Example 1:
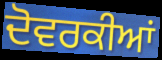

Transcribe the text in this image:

ਦੋਵਰਕੀਆਂ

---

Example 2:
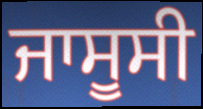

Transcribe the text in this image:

ਜਾਸੂਸੀ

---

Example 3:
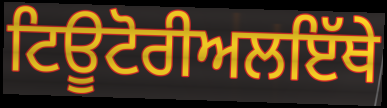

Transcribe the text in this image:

ਟਿਊਟੋਰੀਅਲਇੱਥੇ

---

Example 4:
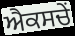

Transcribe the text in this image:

ਐਕਸਚੇਂ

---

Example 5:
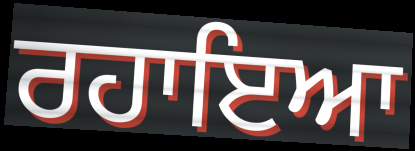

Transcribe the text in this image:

ਰਹਾਇਆ